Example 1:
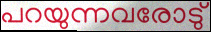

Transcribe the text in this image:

പറയുന്നവരോടു്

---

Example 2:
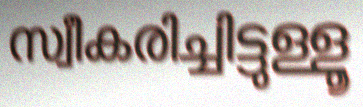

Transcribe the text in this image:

സ്വീകരിച്ചിട്ടുള്ളൂ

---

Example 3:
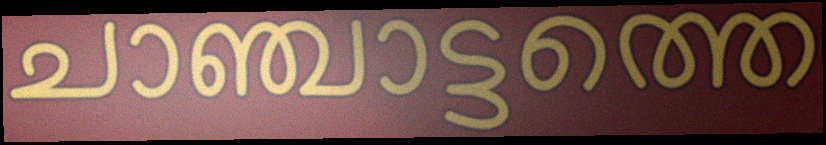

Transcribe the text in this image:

ചാഞ്ചാട്ടത്തെ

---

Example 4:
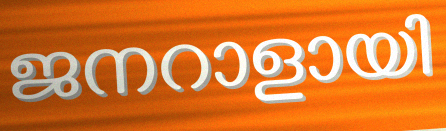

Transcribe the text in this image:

ജനറാളായി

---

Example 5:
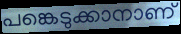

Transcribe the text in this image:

പങ്കെടുക്കാനാണ്